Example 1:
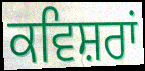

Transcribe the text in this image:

ਕਵਿਸ਼ਰਾਂ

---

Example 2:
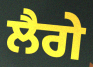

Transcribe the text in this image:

ਲੈਗੇ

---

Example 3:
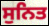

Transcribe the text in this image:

ਸੁਨਿਤ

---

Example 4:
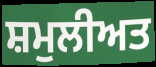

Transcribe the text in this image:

ਸ਼ਮੁਲੀਅਤ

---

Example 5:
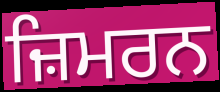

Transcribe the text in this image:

ਜ਼ਿਮਰਨ